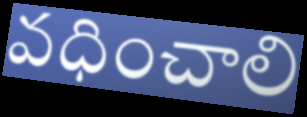
వధించాలి